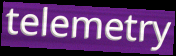
telemetry